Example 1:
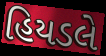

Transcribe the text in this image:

હિયડલે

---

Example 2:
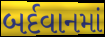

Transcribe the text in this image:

બર્દવાનમાં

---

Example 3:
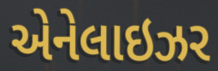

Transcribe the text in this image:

એનેલાઇઝર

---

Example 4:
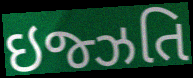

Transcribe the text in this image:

ઇજ્ઝતિ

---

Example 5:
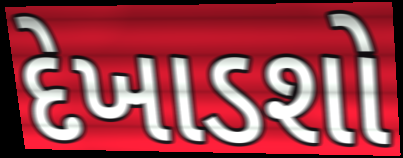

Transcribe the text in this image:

દેખાડશો